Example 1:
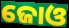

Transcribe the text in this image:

ଜୋଓ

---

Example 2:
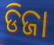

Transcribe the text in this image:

ଡିଜା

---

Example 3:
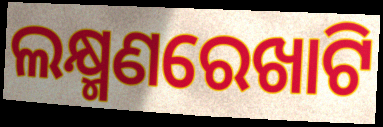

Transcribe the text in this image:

ଲକ୍ଷ୍ମଣରେଖାଟି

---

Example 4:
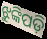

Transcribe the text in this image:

ଝୁଙ୍କିପଡ଼ି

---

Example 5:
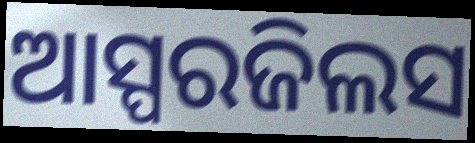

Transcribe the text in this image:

ଆସ୍ପରଜିଲସ